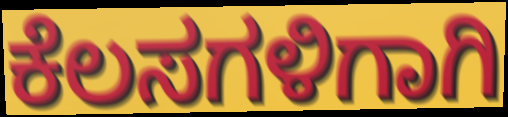
ಕೆಲಸಗಳಿಗಾಗಿ